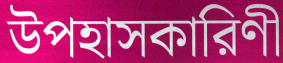
উপহাসকারিণী